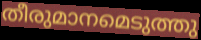
തീരുമാനമെടുത്തു